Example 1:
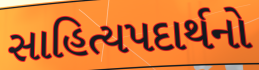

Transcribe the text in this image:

સાહિત્યપદાર્થનો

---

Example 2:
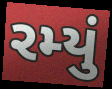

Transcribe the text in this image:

રમ્યું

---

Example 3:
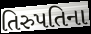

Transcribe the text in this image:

તિરુપતિના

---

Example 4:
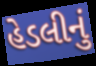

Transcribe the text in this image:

હેડલીનું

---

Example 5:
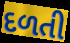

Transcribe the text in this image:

દળતી